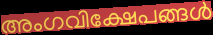
അംഗവിക്ഷേപങ്ങൾ